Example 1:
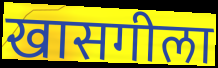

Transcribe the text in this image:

खासगीला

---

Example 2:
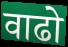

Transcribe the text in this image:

वाढो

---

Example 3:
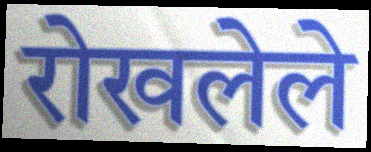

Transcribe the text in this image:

रोखलेले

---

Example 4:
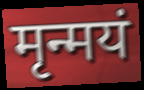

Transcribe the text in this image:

मृन्मयं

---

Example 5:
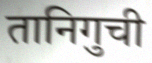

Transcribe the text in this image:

तानिगुची